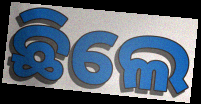
ଛିଲେ